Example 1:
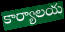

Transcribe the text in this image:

కార్యాలయ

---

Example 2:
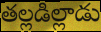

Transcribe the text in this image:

తల్లడిల్లాడు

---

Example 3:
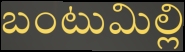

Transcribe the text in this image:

బంటుమిల్లి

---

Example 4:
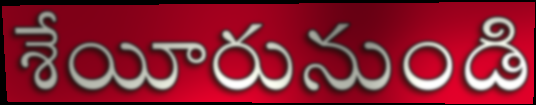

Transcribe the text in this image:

శేయీరునుండి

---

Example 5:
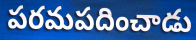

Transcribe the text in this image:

పరమపదించాడు